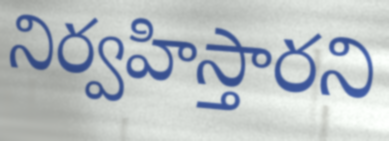
నిర్వహిస్తారని